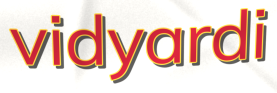
vidyardi